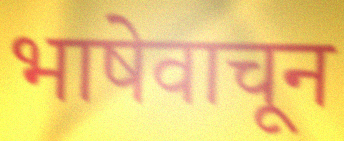
भाषेवाचून